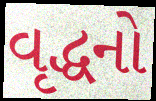
વૃદ્ધનો